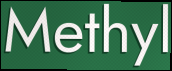
Methyl